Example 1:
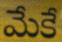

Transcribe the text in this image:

మేకే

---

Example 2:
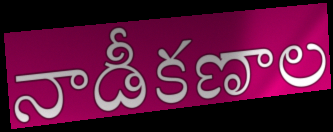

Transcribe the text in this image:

నాడీకణాల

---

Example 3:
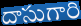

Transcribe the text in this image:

దాసుగారి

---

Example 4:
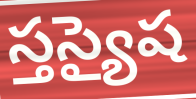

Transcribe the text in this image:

స్తస్యైష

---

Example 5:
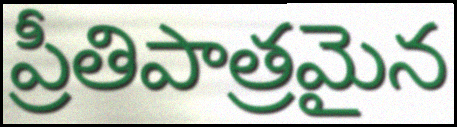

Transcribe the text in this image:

ప్రీతిపాత్రమైన